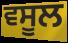
ਵਸੂਲ